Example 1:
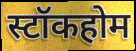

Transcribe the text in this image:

स्टॉकहोम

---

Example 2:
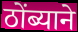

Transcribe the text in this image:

ठोंब्याने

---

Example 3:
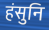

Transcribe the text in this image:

हंसुनि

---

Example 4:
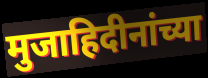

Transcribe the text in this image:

मुजाहिदीनांच्या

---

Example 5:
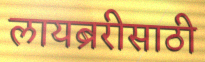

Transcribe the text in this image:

लायब्ररीसाठी